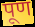
पूण